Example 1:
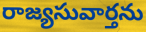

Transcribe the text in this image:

రాజ్యసువార్తను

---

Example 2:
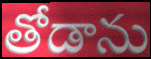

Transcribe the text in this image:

తోడాను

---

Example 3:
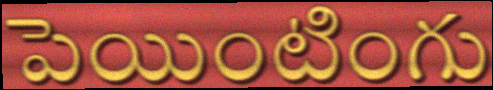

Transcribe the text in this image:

పెయింటింగు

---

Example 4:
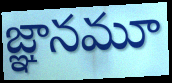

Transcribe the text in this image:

జ్ఞానమూ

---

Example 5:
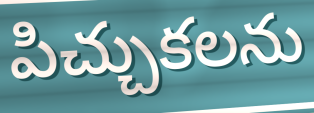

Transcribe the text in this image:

పిచ్చుకలను